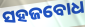
ସହଜବୋଧ